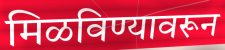
मिळविण्यावरून